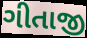
ગીતાજી